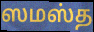
ஸமஸ்த